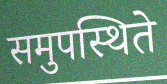
समुपस्थिते